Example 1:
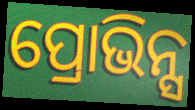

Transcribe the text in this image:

ପ୍ରୋଭିନ୍ସ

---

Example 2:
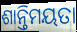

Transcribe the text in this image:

ଶାନ୍ତିମୟତା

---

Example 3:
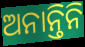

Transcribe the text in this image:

ଅନାନ୍ତିନି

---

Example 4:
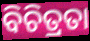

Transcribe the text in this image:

ବିଚିତ୍ରତା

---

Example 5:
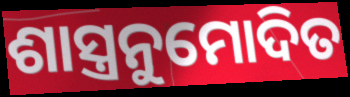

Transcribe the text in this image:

ଶାସ୍ତ୍ରନୁମୋଦିତ